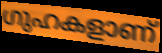
ഗുഹകളാണ്